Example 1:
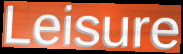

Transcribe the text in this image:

Leisure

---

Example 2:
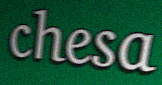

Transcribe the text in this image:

chesa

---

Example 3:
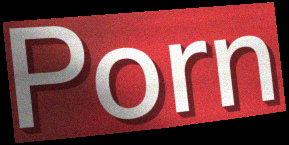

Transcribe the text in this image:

Porn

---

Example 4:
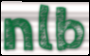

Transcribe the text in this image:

nlb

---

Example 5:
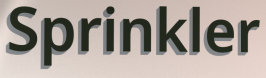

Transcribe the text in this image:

Sprinkler